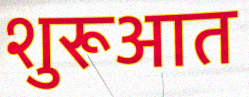
शुरूआत